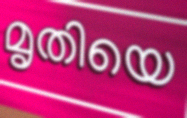
മൃതിയെ